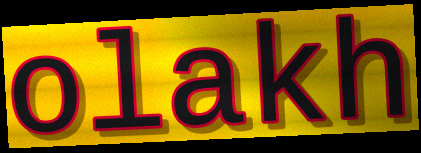
olakh